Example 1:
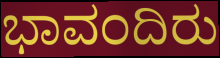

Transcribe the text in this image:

ಭಾವಂದಿರು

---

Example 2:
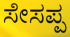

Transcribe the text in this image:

ಸೇಸಪ್ಪ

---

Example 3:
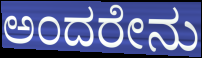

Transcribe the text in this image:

ಅಂದರೇನು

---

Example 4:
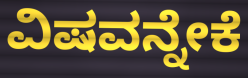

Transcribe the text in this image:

ವಿಷವನ್ನೇಕೆ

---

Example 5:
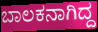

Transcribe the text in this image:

ಬಾಲಕನಾಗಿದ್ದ